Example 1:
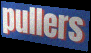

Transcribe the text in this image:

pullers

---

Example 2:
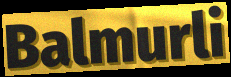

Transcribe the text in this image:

Balmurli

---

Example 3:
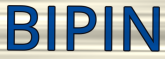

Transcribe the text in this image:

BIPIN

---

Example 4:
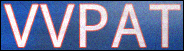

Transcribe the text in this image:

VVPAT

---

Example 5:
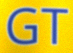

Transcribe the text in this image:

GT